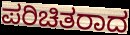
ಪರಿಚಿತರಾದ